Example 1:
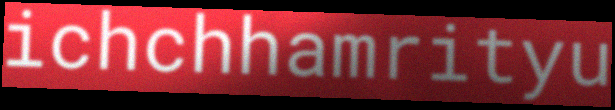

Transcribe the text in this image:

ichchhamrityu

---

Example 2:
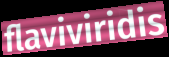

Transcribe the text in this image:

flaviviridis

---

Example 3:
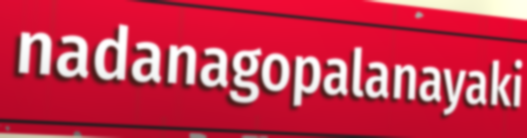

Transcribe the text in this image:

nadanagopalanayaki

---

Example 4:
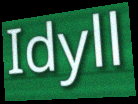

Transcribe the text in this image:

Idyll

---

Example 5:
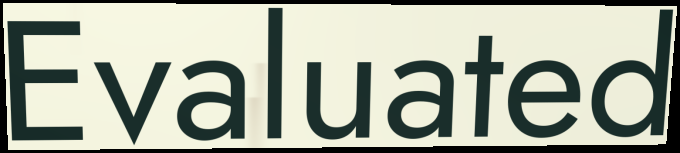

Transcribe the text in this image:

Evaluated